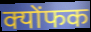
क्योंफक